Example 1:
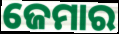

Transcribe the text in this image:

ଜେମାର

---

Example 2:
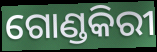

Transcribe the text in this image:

ଗୋଣ୍ଡକିରୀ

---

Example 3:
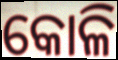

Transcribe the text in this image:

କୋଳି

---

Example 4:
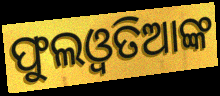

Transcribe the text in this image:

ଫୁଲଓ୍ୱତିଆଙ୍କ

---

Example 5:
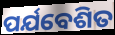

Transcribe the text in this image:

ପର୍ଯବେଶିତ